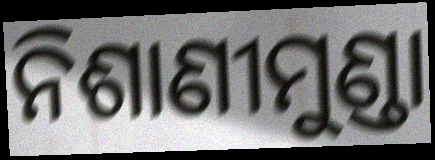
ନିଶାଣୀମୁଣ୍ଡା